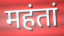
महंतां